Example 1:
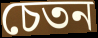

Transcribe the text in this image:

চেতন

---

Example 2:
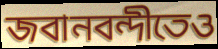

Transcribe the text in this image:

জবানবন্দীতেও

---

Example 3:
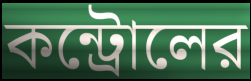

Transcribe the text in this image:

কন্ট্রোলের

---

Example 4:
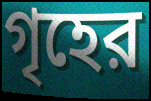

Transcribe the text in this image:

গৃহের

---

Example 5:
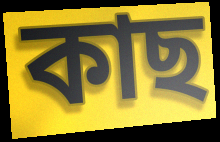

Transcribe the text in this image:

কাছ